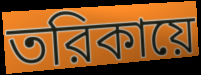
তরিকায়ে